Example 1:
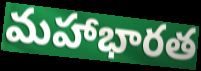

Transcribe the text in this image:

మహాభారత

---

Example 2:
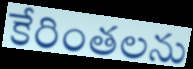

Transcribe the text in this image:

కేరింతలను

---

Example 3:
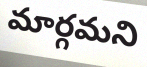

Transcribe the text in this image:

మార్గమని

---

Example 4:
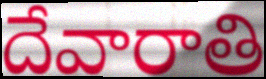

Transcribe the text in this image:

దేవారాతి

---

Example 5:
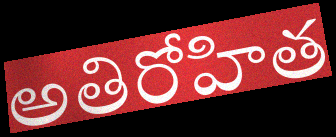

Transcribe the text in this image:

అతిరోహిత